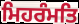
ਮਿਹਰੰਮਤਿ